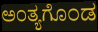
ಅಂತ್ಯಗೊಂಡ